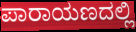
ಪಾರಾಯಣದಲ್ಲಿ